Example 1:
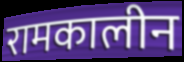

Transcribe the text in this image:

रामकालीन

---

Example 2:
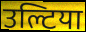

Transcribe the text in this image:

उल्टिया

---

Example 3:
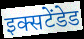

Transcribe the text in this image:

इक्सटेंडेड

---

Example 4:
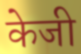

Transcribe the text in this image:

केजी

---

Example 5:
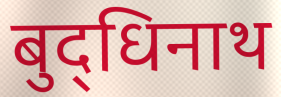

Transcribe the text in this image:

बुद्धिनाथ